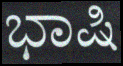
ಭಾಷಿ